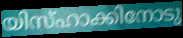
യിസ്ഹാക്കിനോടു